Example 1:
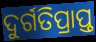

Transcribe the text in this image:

ଦୁର୍ଗତିପ୍ରାପ୍ତ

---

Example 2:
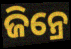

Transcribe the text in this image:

ଜିନ୍ରେ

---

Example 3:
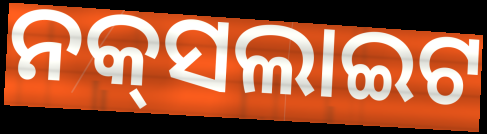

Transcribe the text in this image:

ନକ୍‌ସଲାଇଟ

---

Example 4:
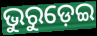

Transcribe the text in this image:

ଭୁରୁଡ଼େଇ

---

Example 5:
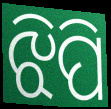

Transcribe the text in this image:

ଝିପି